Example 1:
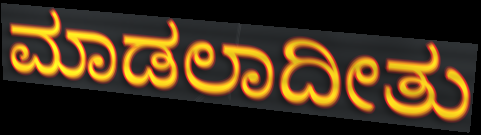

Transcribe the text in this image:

ಮಾಡಲಾದೀತು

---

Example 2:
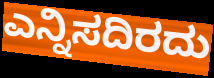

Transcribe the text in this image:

ಎನ್ನಿಸದಿರದು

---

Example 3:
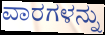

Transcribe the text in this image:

ವಾರಗಳನ್ನು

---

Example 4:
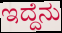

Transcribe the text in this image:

ಇದ್ದೆನು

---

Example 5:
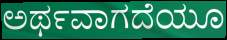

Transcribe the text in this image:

ಅರ್ಥವಾಗದೆಯೂ